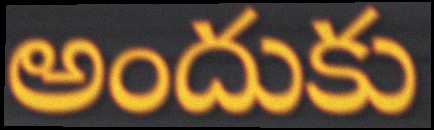
అందుకు